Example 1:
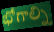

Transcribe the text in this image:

భోగాల్ని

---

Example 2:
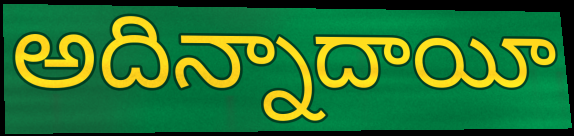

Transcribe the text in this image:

అదిన్నాదాయీ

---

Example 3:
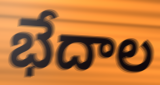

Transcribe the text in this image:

భేదాల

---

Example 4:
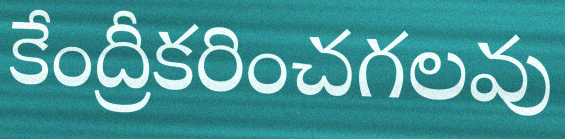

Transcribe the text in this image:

కేంద్రీకరించగలవు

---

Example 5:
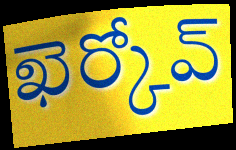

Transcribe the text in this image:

ఖెర్కోవ్